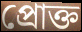
প্রোক্ত